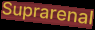
Suprarenal